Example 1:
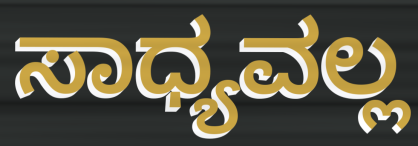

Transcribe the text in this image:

ಸಾಧ್ಯವಲ್ಲ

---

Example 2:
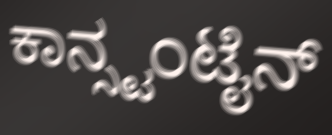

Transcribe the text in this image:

ಕಾನ್ಸ್ಟಂಟೈನ್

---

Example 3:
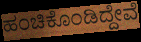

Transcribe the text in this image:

ಹಂಚಿಕೊಂಡಿದ್ದೇವೆ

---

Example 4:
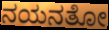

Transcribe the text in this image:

ನಯನತೋ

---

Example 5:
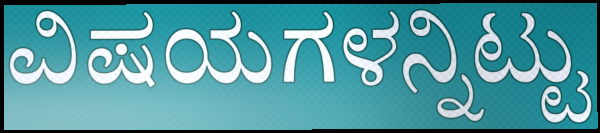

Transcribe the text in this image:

ವಿಷಯಗಳನ್ನಿಟ್ಟು